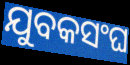
ଯୁବକସଂଘ